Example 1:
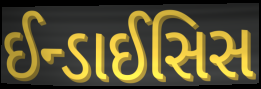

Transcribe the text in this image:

ઈન્ડાઈસિસ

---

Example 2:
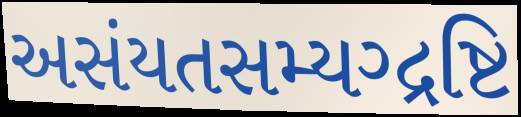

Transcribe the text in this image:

અસંયતસમ્યગ્દ્રષ્ટિ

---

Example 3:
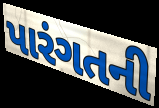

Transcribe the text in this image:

પારંગતની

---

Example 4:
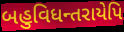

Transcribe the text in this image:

બહુવિધન્તરાયેપિ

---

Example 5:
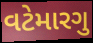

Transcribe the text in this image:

વટેમારગુ